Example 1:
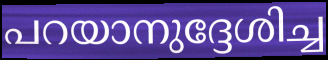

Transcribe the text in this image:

പറയാനുദ്ദേശിച്ച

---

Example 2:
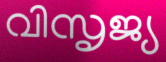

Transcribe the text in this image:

വിസൃജ്യ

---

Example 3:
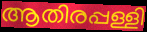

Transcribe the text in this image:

ആതിരപ്പള്ളി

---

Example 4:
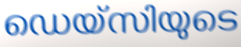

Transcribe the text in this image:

ഡെയ്സിയുടെ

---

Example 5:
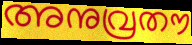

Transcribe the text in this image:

അനുവ്രതൗ